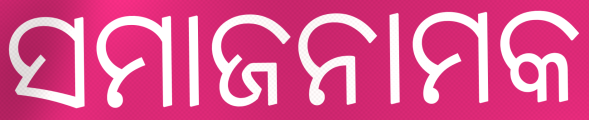
ସମାଜନାମକ